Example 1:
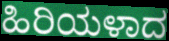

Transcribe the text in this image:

ಹಿರಿಯಳಾದ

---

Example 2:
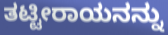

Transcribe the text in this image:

ತಟ್ಟೀರಾಯನನ್ನು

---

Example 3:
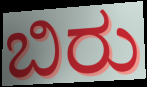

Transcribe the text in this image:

ಬಿರು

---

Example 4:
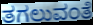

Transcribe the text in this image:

ತಗಲುವಂತೆ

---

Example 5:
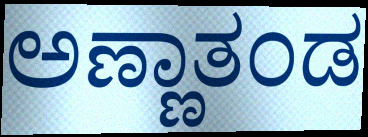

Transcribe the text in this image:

ಅಣ್ಣಾತಂಡ